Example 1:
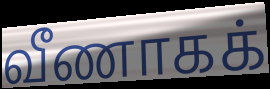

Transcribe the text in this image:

வீணாகக்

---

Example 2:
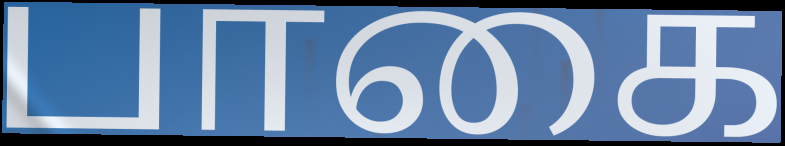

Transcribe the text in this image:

பாகை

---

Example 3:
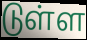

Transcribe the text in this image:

டுள்ள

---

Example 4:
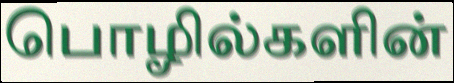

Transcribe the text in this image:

பொழில்களின்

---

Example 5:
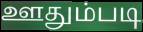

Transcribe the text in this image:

ஊதும்படி